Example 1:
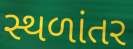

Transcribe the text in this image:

સ્થળાંતર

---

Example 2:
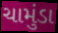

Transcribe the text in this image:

ચામુંડા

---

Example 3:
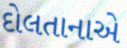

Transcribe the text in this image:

દોલતાનાએ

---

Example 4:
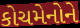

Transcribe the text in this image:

કોચમેનોને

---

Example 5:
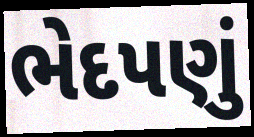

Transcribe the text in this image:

ભેદપણું